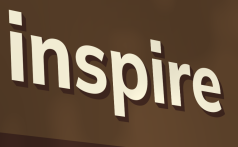
inspire